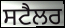
ਸਟੈਲਰ